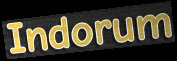
Indorum